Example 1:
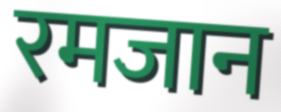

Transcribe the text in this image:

रमजान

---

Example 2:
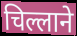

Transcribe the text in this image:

चिल्लाने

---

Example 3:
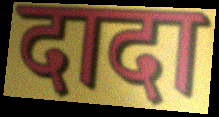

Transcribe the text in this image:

दादा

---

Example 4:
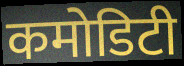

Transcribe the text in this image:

कमोडिटी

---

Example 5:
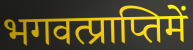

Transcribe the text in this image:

भगवत्प्राप्तिमें